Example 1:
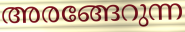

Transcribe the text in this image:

അരങ്ങേറുന്ന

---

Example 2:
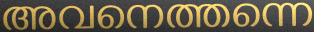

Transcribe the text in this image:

അവനെത്തന്നെ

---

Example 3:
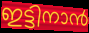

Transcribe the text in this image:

ഇട്ടിനാൻ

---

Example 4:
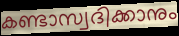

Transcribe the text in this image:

കണ്ടാസ്വദിക്കാനും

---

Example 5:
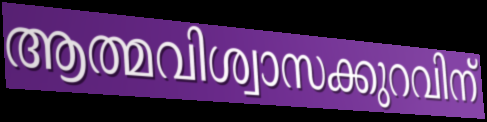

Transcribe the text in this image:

ആത്മവിശ്വാസക്കുറവിന്